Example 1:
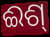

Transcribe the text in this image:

ଈଶ୍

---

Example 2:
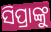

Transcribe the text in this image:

ସିପ୍ରାଙ୍କୁ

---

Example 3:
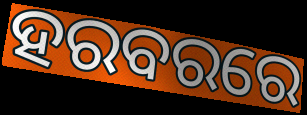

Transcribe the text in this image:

ହରବରରେ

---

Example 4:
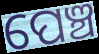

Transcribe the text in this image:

ପେଞ୍ଚ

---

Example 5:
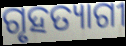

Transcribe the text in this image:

ଗୃହତ୍ୟାଗୀ